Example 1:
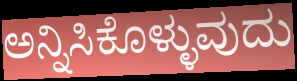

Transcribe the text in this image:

ಅನ್ನಿಸಿಕೊಳ್ಳುವುದು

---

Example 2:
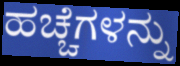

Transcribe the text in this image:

ಹಚ್ಚೆಗಳನ್ನು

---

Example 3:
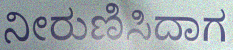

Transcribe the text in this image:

ನೀರುಣಿಸಿದಾಗ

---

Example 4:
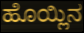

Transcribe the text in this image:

ಹೊಯ್ಲಿನ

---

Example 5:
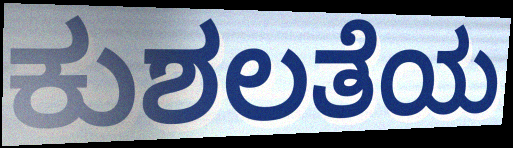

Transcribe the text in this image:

ಕುಶಲತೆಯ